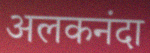
अलकनंदा